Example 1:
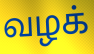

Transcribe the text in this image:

வழக்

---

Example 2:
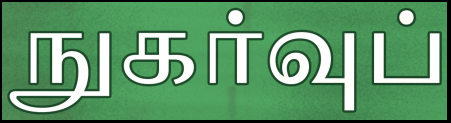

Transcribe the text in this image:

நுகர்வுப்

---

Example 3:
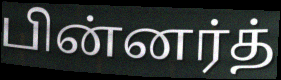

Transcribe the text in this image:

பின்னர்த்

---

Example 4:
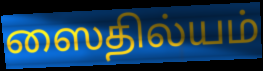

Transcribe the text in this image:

ஸைதில்யம்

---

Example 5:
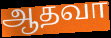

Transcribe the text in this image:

ஆதவா